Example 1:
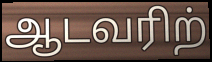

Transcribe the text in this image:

ஆடவரிற்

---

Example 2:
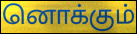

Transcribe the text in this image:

னொக்கும்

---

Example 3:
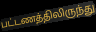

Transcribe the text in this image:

பட்டணத்திலிருந்து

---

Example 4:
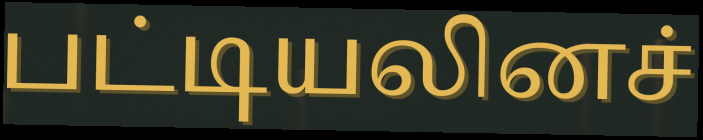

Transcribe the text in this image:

பட்டியலினச்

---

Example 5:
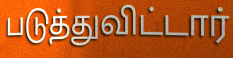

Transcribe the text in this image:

படுத்துவிட்டார்